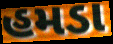
હમડા